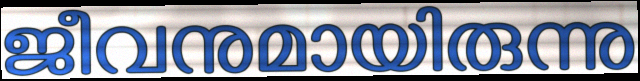
ജീവനുമായിരുന്നു